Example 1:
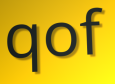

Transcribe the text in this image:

qof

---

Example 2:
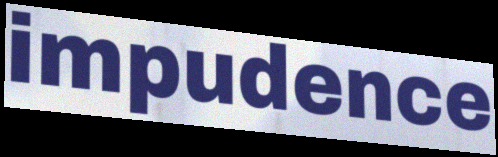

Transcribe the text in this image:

impudence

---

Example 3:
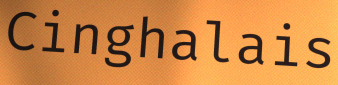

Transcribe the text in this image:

Cinghalais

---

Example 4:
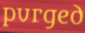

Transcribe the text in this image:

purged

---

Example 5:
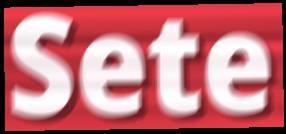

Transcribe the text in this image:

Sete